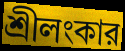
শ্রীলংকার